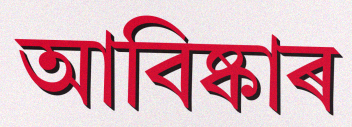
আবিষ্কাৰ